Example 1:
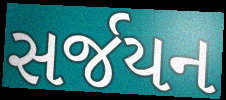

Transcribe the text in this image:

સર્જયન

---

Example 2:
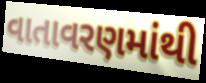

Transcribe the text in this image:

વાતાવરણમાંથી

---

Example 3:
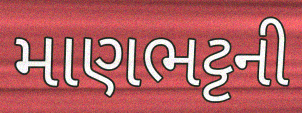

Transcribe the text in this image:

માણભટ્ટની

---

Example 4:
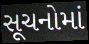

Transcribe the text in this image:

સૂચનોમાં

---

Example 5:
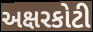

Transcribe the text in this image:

અક્ષરકોટી